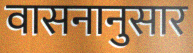
वासनानुसार